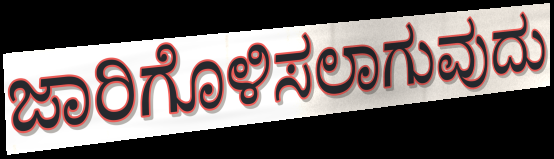
ಜಾರಿಗೊಳಿಸಲಾಗುವುದು